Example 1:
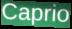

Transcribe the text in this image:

Caprio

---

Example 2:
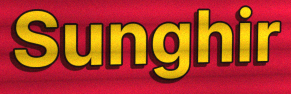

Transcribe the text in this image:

Sunghir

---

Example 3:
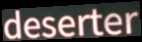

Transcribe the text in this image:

deserter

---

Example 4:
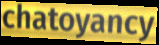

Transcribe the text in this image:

chatoyancy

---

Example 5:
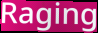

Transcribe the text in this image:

Raging